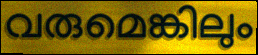
വരുമെങ്കിലും